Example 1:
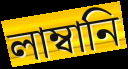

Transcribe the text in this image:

লাম্বানি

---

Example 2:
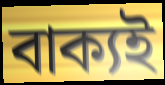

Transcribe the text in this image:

বাক্যই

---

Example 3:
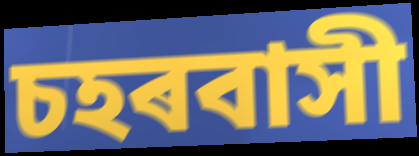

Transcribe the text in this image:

চহৰবাসী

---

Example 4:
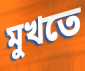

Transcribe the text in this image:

মুখতে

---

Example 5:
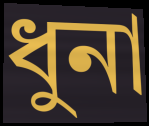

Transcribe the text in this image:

ধুনা